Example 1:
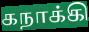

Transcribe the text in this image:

கநாக்கி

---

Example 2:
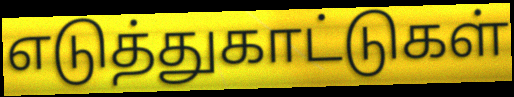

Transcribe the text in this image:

எடுத்துகாட்டுகள்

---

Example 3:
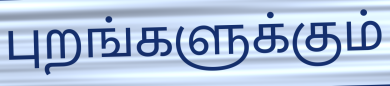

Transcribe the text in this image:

புறங்களுக்கும்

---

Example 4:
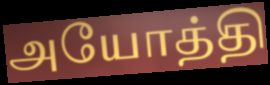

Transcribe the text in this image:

அயோத்தி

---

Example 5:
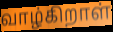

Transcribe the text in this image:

வாழ்கிறாள்